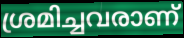
ശ്രമിച്ചവരാണ്